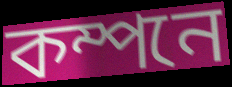
কম্পনে